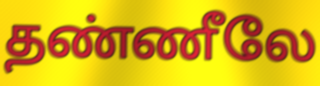
தண்ணீலே